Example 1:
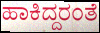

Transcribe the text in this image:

ಹಾಕಿದ್ದರಂತೆ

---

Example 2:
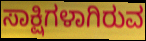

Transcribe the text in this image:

ಸಾಕ್ಷಿಗಳಾಗಿರುವ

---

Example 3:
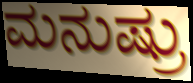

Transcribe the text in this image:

ಮನುಷ್ರು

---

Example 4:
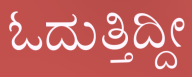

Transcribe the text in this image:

ಓದುತ್ತಿದ್ದೀ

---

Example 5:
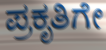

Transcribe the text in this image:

ಪ್ರಕೃತಿಗೇ